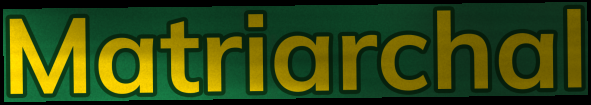
Matriarchal